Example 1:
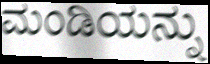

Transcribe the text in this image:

ಮಂಡಿಯನ್ನು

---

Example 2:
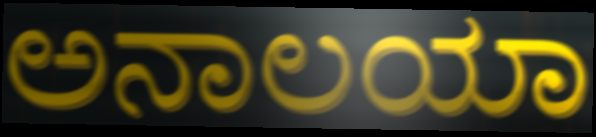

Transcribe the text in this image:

ಅನಾಲಯಾ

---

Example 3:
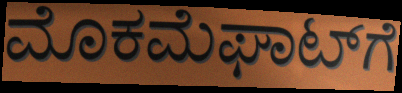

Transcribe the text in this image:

ಮೊಕಮೆಘಾಟ್‌ಗೆ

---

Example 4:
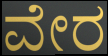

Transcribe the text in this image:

ವೇರ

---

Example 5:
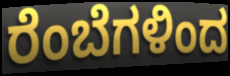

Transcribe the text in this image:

ರೆಂಬೆಗಳಿಂದ